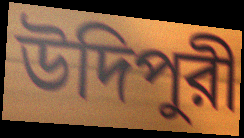
উদিপুরী